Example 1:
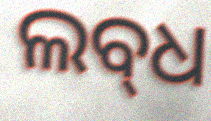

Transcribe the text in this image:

ଲବ୍‍ଧ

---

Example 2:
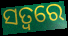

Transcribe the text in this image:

ସତ୍ଵରେ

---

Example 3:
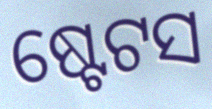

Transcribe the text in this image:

ଷ୍ଟେଟସ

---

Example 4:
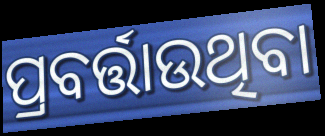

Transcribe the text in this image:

ପ୍ରବର୍ତ୍ତାଉଥିବା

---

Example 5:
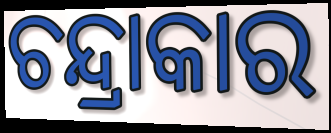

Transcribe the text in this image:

ଚନ୍ଦ୍ରାକାର